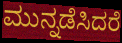
ಮುನ್ನಡೆಸಿದರೆ